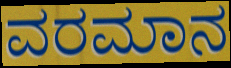
ವರಮಾನ